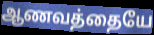
ஆணவத்தையே